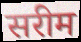
सरीम